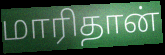
மாரிதான்